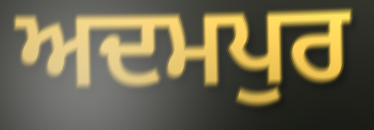
ਅਦਮਪੁਰ